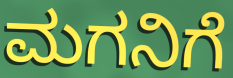
ಮಗನಿಗೆ